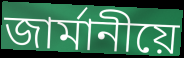
জাৰ্মানীয়ে